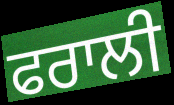
ਫਰਾਲੀ